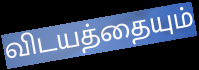
விடயத்தையும்